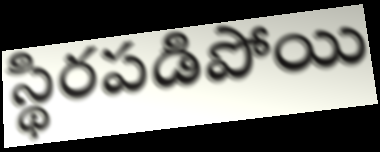
స్థిరపడిపోయి